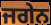
ਜਗੇਨ